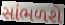
સાંભળશે